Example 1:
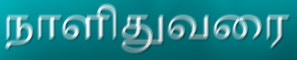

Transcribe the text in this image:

நாளிதுவரை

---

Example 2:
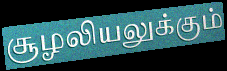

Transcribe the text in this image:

சூழலியலுக்கும்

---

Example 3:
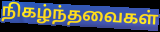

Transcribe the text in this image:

நிகழ்ந்தவைகள்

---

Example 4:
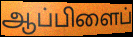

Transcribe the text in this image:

ஆப்பிளைப்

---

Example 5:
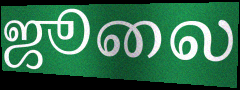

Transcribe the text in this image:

ஜூலை